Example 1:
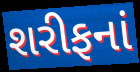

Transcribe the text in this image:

શરીફનાં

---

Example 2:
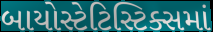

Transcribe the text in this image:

બાયોસ્ટેટિસ્ટિક્સમાં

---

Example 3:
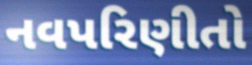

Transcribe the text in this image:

નવપરિણીતો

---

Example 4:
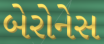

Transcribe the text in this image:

બેરોનેસ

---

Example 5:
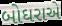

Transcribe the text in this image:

બોઘરાએ